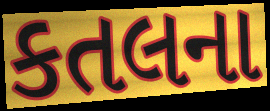
કતલના